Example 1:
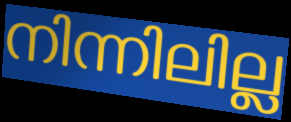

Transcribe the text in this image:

നിന്നിലില്ല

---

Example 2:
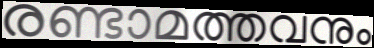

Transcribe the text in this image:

രണ്ടാമത്തവനും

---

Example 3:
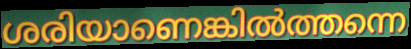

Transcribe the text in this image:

ശരിയാണെങ്കിൽത്തന്നെ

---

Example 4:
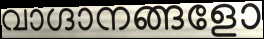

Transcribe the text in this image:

വാഗ്ദാനങ്ങളോ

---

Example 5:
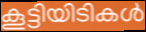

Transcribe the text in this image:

കൂട്ടിയിടികൾ